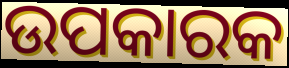
ଉପକାରକ